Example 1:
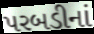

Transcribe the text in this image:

પરબડીનાં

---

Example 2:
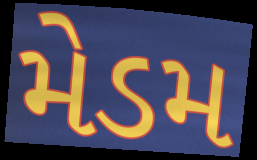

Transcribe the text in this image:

મેડમ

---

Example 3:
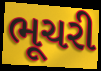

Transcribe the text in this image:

ભૂચરી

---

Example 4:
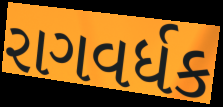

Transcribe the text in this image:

રાગવર્ધક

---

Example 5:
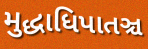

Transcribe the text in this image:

મુદ્ધાધિપાતઞ્ચ